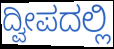
ದ್ವೀಪದಲ್ಲಿ